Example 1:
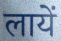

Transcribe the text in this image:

लायें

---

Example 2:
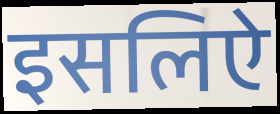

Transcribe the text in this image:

इसलिऐ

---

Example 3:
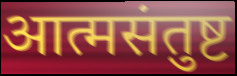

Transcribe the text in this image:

आत्मसंतुष्ट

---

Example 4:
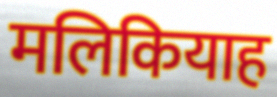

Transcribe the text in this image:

मलिकियाह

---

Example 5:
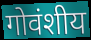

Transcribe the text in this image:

गोवंशीय